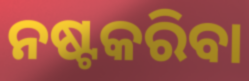
ନଷ୍ଟକରିବା